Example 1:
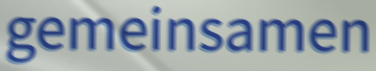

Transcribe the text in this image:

gemeinsamen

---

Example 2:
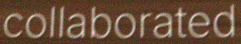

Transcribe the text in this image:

collaborated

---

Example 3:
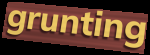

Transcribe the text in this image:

grunting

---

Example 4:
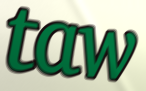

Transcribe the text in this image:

taw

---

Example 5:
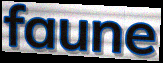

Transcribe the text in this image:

faune